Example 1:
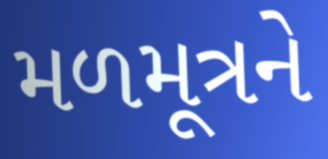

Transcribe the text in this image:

મળમૂત્રને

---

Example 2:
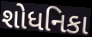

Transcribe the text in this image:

શોધનિકા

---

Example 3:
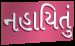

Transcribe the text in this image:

નહાયિતું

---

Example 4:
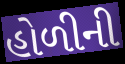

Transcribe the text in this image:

હોળીની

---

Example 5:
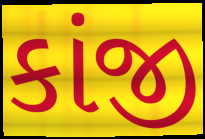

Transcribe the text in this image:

કાંજી